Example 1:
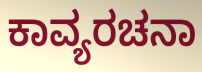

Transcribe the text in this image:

ಕಾವ್ಯರಚನಾ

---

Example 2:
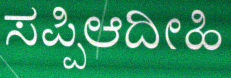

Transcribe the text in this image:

ಸಪ್ಪಿಆದೀಹಿ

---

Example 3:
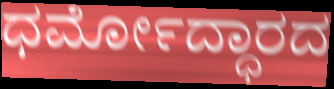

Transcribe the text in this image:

ಧರ್ಮೋದ್ಧಾರದ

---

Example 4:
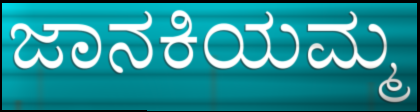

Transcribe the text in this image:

ಜಾನಕಿಯಮ್ಮ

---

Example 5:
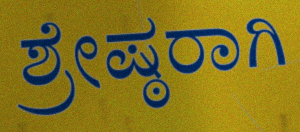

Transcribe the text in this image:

ಶ್ರೇಷ್ಠರಾಗಿ